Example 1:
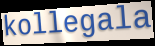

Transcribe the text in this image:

kollegala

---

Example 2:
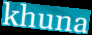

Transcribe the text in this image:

khuna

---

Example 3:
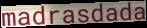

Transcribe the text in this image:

madrasdada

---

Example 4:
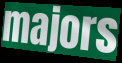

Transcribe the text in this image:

majors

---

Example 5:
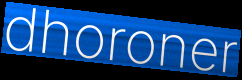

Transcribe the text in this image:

dhoroner